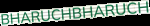
BHARUCHBHARUCH